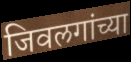
जिवलगांच्या